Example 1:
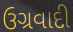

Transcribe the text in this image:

ઉગ્રવાદી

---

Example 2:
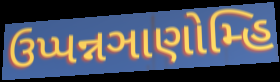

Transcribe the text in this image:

ઉપ્પન્નઞાણોમ્હિ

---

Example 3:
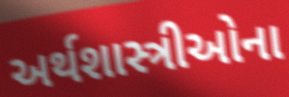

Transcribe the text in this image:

અર્થશાસ્ત્રીઓના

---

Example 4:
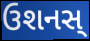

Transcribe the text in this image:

ઉશનસ્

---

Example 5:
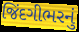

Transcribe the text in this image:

જિંદગીભરનું